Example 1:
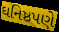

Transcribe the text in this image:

ઘનિષ્ઠપણે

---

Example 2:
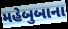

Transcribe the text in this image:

મહેબુબાના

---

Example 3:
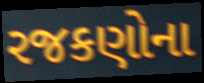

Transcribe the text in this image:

રજકણોના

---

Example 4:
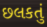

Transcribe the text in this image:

છલકતું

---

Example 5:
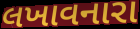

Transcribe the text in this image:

લખાવનારા